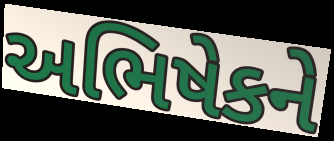
અભિષેકને